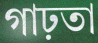
গাঢ়তা